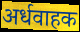
अर्धवाहक